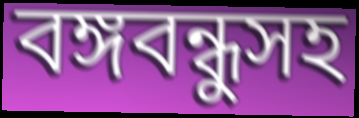
বঙ্গবন্ধুসহ